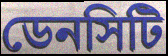
ডেনসিটি